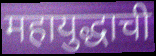
महायुद्धाची